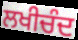
ਲਖੀਚੰਦ